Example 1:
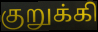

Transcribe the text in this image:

குறுக்கி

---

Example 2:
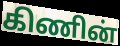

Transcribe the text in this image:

கிணின்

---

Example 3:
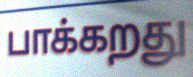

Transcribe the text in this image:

பாக்கறது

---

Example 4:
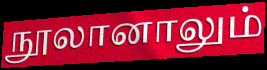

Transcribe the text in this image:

நூலானாலும்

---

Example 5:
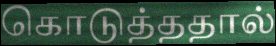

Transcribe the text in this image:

கொடுத்ததால்